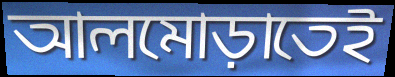
আলমোড়াতেই